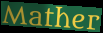
Mather